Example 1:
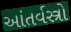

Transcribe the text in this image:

આંતર્વસ્ત્રો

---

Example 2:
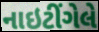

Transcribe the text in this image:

નાઇટીંગેલે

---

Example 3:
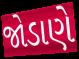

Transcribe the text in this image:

જોડાણે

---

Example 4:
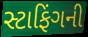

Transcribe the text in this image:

સ્ટાફિંગની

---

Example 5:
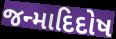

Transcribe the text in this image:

જન્માદિદોષ